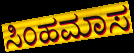
ಸಿಂಹಮಾಸ